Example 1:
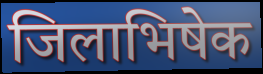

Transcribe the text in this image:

जिलाभिषेक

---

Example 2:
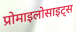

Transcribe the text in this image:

प्रोमाइलोसाइट्स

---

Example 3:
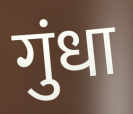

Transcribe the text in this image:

गुंधा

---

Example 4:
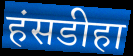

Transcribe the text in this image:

हंसडीहा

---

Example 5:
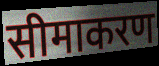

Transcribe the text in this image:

सीमाकरण